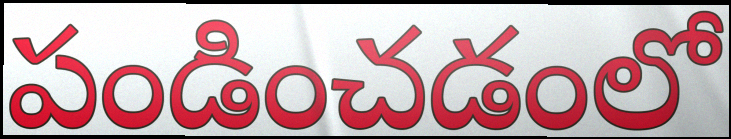
పండించడంలో